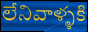
లేనివాళ్ళకి